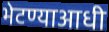
भेटण्याआधी